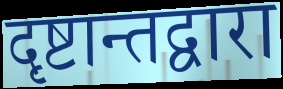
दृष्टान्तद्वारा